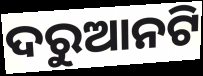
ଦରୁଆନଟି